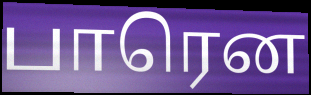
பாரென